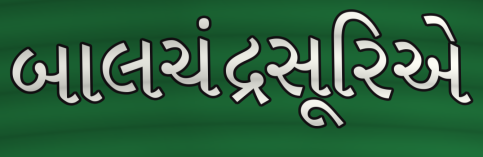
બાલચંદ્રસૂરિએ